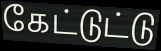
கேட்டுட்டு